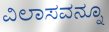
ವಿಲಾಸವನ್ನೂ